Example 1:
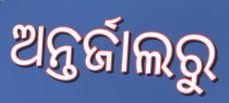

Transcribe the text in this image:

ଅନ୍ତର୍ଜାଲରୁ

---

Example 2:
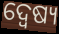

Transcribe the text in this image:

ଦ୍ୱେଷ୍ୟ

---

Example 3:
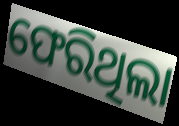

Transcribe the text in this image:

ଫେରିଥିଲା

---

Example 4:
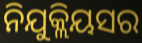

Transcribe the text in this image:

ନିଯୁକ୍ଲିୟସର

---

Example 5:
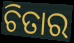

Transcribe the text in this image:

ଚିତାର